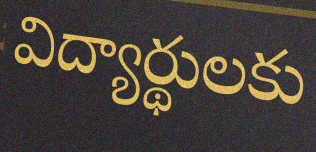
విద్యార్థులకు